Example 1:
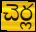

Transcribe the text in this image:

చెర్ల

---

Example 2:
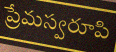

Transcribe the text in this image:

ప్రేమస్వరూపి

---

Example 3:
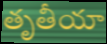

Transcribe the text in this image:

తృతీయా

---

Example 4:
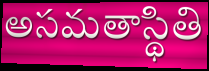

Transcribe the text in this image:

అసమతాస్థితి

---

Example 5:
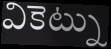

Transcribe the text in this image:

వికెట్ను